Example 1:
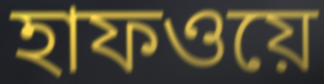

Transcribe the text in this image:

হাফওয়ে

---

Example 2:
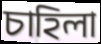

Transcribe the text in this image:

চাহিলা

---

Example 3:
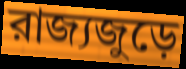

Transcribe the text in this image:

রাজ্যজুড়ে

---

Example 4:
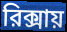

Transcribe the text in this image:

রিক্সায়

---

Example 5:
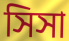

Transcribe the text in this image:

সিসা